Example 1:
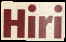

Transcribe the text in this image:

Hiri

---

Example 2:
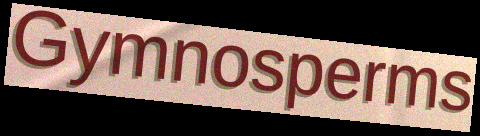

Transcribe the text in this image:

Gymnosperms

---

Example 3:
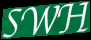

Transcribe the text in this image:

SWH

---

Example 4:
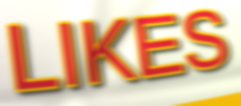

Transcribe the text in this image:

LIKES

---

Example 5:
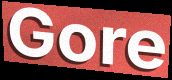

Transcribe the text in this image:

Gore